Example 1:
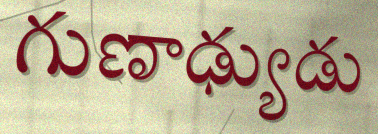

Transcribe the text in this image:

గుణాఢ్యుడు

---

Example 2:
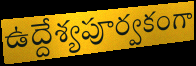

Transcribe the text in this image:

ఉద్దేశ్యపూర్వకంగా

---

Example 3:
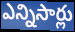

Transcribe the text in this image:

ఎన్నిసార్లు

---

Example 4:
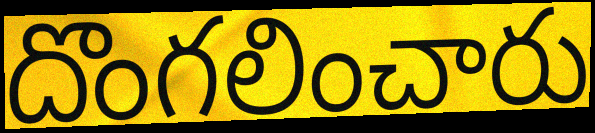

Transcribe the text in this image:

దొంగలించారు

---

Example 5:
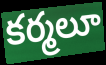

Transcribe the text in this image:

కర్మలూ